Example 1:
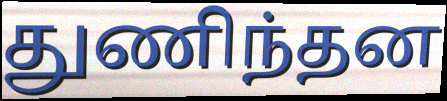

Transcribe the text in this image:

துணிந்தன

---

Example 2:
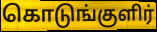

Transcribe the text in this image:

கொடுங்குளிர்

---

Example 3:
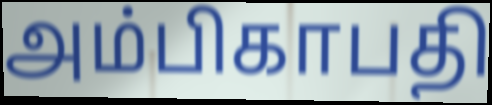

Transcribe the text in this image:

அம்பிகாபதி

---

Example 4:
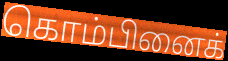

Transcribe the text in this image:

கொம்பினைக்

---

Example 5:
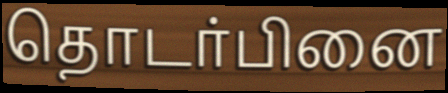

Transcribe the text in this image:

தொடர்பினை